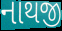
નાથજી